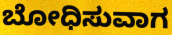
ಬೋಧಿಸುವಾಗ